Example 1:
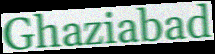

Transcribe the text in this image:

Ghaziabad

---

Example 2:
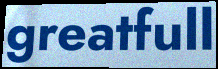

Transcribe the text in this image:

greatfull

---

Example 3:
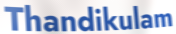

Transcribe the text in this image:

Thandikulam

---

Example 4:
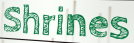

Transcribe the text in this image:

Shrines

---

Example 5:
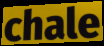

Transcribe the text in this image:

chale